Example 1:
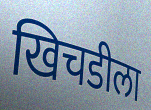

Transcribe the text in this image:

खिचडीला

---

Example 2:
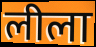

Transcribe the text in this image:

लीला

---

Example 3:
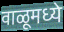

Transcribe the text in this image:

वाळूमध्ये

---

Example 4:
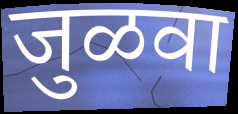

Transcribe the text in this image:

जुळवा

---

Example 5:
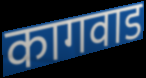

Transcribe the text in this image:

कागवाड